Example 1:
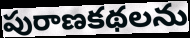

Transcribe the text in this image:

పురాణకథలను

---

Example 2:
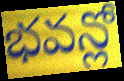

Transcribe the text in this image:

భవన్లో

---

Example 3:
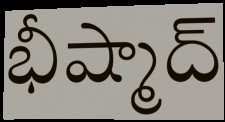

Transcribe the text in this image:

భీష్మాద్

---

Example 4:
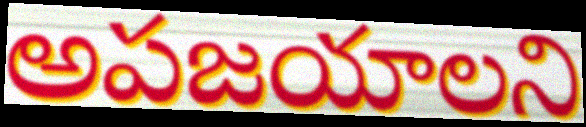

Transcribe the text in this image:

అపజయాలని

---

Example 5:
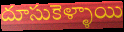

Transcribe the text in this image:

దూసుకెళ్ళాయి